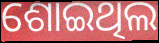
ଶୋଇଥିଲ